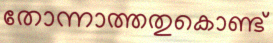
തോന്നാത്തതുകൊണ്ട്